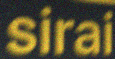
sirai